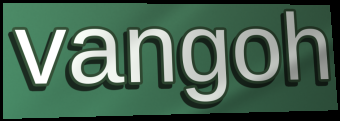
vangoh